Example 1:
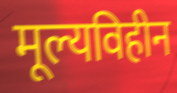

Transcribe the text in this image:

मूल्यविहीन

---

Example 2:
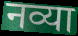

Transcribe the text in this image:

नव्‍या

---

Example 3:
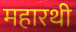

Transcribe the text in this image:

महारथी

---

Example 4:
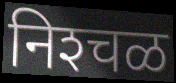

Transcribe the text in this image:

निश्‍चळ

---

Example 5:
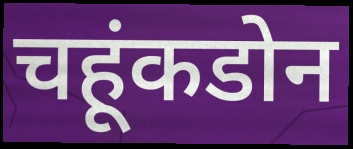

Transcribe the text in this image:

चहूंकडोन